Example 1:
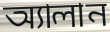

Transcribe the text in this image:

অ্যালান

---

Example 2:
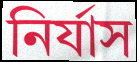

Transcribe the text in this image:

নির্যাস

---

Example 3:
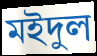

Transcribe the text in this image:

মইদুল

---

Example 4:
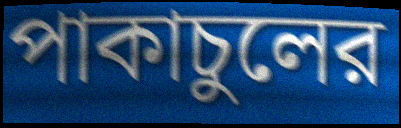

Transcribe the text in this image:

পাকাচুলের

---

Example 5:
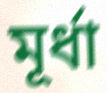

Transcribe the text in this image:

মূর্ধা